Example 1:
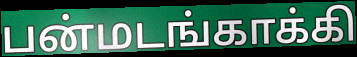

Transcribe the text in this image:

பன்மடங்காக்கி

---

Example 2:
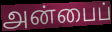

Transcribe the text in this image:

அன்பைப்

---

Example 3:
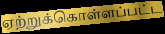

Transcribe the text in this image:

ஏற்றுக்கொள்ளப்பட்ட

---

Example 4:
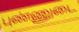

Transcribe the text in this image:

புண்ணுடை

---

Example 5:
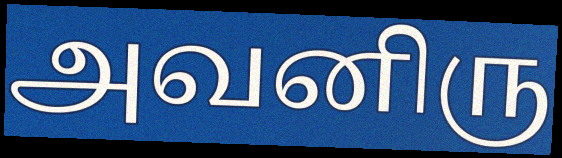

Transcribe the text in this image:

அவனிரு